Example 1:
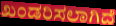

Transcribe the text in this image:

ಖಂಡರಿಸಲಾಗಿದೆ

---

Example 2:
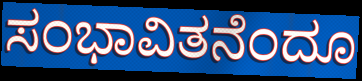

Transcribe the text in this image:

ಸಂಭಾವಿತನೆಂದೂ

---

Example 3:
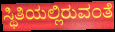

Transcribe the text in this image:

ಸ್ಥಿತಿಯಲ್ಲಿರುವಂತೆ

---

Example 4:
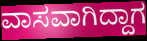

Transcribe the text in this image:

ವಾಸವಾಗಿದ್ದಾಗ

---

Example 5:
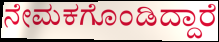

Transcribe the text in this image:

ನೇಮಕಗೊಂಡಿದ್ದಾರೆ